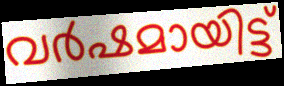
വർഷമായിട്ട്